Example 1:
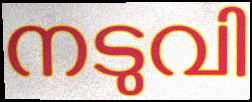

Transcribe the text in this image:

നടുവി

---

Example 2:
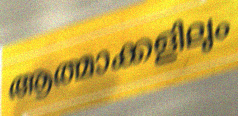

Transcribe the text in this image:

ആത്മാക്കളിലും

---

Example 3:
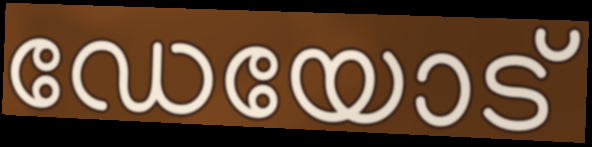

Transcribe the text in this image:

ഡേയോട്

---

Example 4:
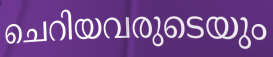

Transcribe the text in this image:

ചെറിയവരുടെയും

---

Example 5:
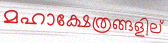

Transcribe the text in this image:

മഹാക്ഷേത്രങ്ങളില്